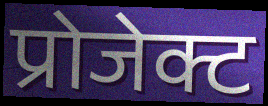
प्रोजेक्ट